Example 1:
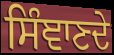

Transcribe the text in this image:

ਸਿੰਞਾਣਦੇ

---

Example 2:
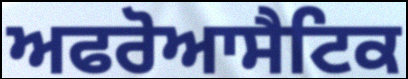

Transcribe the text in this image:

ਅਫਰੋਆਸੈਟਿਕ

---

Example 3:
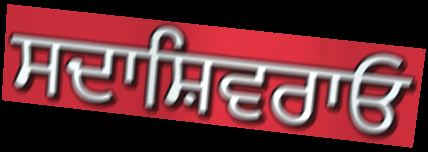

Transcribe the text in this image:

ਸਦਾਸ਼ਿਵਰਾਓ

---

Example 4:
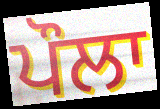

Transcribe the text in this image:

ਪੌਲਾ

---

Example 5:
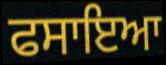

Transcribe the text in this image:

ਫਸਾਇਆ